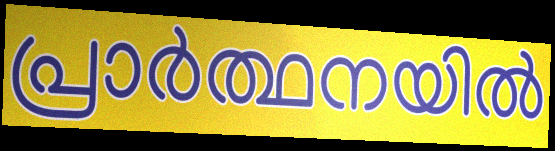
പ്രാർത്ഥനയിൽ